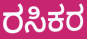
ರಸಿಕರ